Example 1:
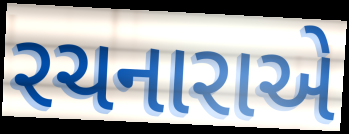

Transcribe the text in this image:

રચનારાએ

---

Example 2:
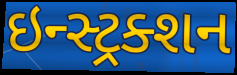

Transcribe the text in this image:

ઇન્સ્ટ્રક્શન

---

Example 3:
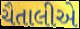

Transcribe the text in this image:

ચૈતાલીએ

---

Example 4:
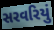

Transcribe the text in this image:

સરવરિયું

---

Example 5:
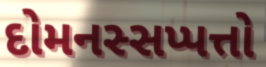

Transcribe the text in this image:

દોમનસ્સપ્પત્તો